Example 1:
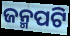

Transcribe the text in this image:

ଜନ୍ମପଟି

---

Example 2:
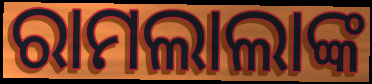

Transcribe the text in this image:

ରାମଲାଲାଙ୍କ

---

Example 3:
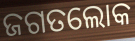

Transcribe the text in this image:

ଜଗତଲୋକ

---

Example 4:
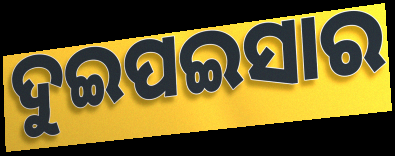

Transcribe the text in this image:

ଦୁଇପଇସାର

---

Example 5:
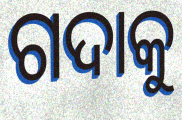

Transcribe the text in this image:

ଗଦାକୁ